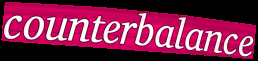
counterbalance